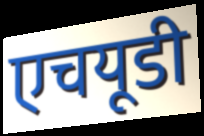
एचयूडी